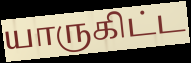
யாருகிட்ட